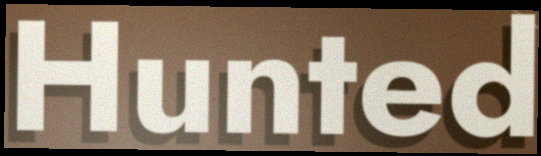
Hunted